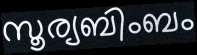
സൂര്യബിംബം